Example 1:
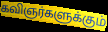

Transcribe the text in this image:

கவிஞர்களுக்கும்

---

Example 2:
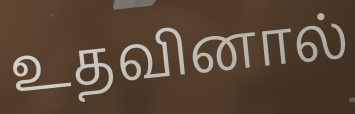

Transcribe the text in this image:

உதவினால்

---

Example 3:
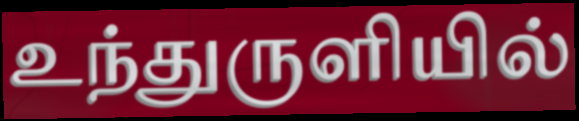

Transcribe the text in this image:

உந்துருளியில்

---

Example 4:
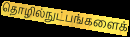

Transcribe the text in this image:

தொழில்நுட்பங்களைக்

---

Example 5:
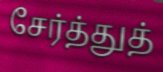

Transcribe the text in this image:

சேர்த்துத்